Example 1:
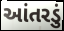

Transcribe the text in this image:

આંતરડું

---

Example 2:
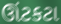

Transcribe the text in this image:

ઊંટકટા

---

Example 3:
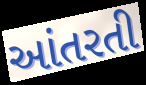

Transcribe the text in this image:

આંતરતી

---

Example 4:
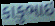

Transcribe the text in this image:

કાકુભાઇ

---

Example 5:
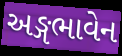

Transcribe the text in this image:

અઙ્ગભાવેન